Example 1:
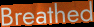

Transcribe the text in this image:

Breathed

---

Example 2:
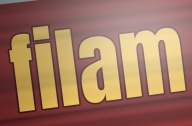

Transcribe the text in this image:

filam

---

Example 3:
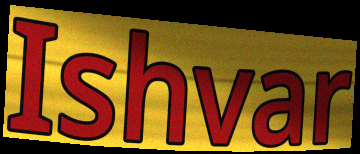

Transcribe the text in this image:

Ishvar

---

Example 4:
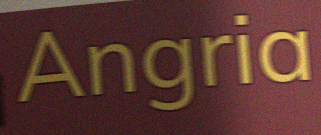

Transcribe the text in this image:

Angria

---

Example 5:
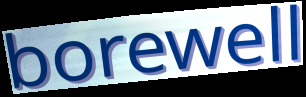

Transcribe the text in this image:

borewell